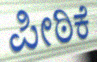
ಪೀಠಿಕೆ